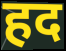
हद